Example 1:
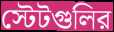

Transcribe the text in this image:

স্টেটগুলির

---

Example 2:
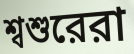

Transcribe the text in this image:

শ্বশুরেরা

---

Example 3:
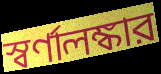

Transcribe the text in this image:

স্বর্ণালঙ্কার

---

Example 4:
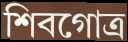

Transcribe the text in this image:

শিবগোত্র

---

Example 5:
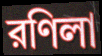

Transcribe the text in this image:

রণিলা